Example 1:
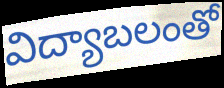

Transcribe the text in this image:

విద్యాబలంతో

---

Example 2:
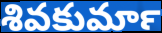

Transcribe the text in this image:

శివకుమార్‍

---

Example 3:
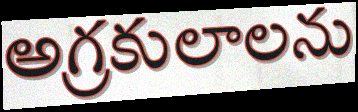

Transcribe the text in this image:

అగ్రకులాలను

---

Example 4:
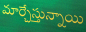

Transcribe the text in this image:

మార్చేస్తున్నాయి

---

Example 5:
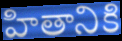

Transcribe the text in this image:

హితానికి